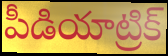
పీడియాట్రిక్